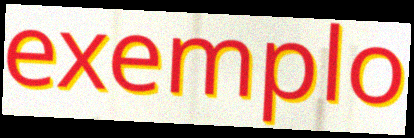
exemplo